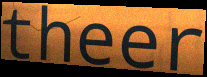
theer